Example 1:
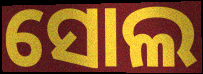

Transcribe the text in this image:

ସୋଲ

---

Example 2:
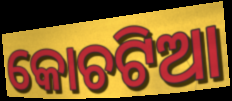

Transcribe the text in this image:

କୋଚଟିଆ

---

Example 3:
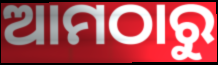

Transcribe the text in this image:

ଆମଠାରୁ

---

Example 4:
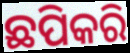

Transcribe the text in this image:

ଛପିକରି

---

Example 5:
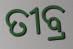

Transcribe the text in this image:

ତୀବ୍ର